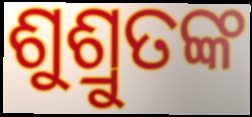
ଶୁଶ୍ରୁତଙ୍କ